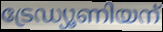
ട്രേഡ്യൂണിയന്